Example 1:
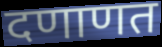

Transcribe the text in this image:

दणाणत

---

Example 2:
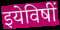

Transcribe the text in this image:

इयेविषीं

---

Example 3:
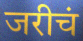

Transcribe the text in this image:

जरीचं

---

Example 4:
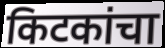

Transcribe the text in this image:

किटकांचा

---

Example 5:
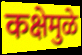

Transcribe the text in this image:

कक्षेमुळे